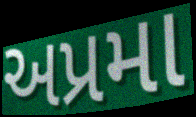
અપ્રમા